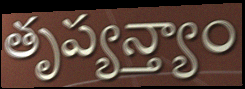
తృప్యన్త్యాం